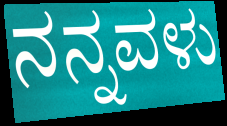
ನನ್ನವಳು